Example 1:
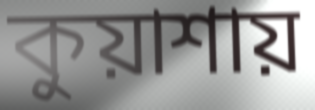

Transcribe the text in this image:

কুয়াশায়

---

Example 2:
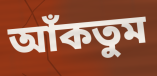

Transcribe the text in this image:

আঁকতুম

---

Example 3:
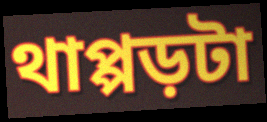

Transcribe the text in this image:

থাপ্পড়টা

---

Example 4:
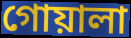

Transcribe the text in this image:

গোয়ালা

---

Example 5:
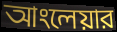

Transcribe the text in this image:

আংলেয়ার